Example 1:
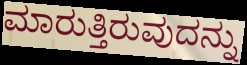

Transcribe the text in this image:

ಮಾರುತ್ತಿರುವುದನ್ನು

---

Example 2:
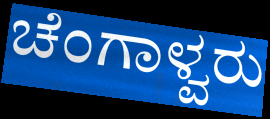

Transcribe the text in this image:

ಚೆಂಗಾಳ್ವರು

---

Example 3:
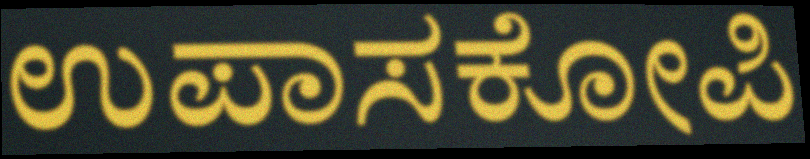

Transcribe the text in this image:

ಉಪಾಸಕೋಪಿ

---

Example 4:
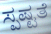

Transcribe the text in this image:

ಸ್ಪಷ್ಟತೆ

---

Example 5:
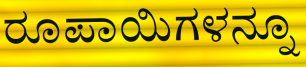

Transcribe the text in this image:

ರೂಪಾಯಿಗಳನ್ನೂ